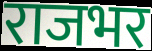
राजभर